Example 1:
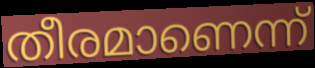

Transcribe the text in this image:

തീരമാണെന്ന്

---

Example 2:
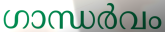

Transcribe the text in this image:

ഗാന്ധർവം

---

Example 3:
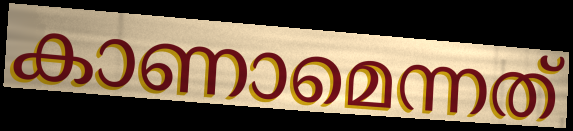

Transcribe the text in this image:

കാണാമെന്നത്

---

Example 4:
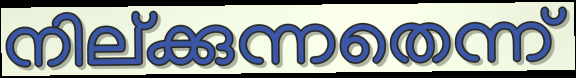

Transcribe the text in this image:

നില്ക്കുന്നതെന്ന്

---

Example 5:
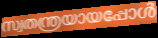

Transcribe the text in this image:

സ്വതന്ത്രയായപ്പോൾ